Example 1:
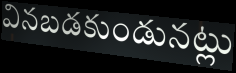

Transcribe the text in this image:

వినబడకుండునట్లు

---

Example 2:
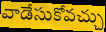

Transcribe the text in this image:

వాడేసుకోవచ్చు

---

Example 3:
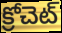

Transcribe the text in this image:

క్రోచెట్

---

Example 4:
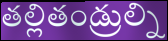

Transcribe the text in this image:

తల్లితండ్రుల్ని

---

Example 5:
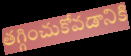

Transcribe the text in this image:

తగ్గించుకోవడానికి